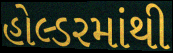
હોલ્ડરમાંથી